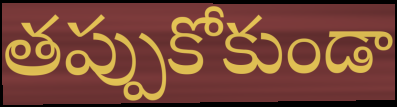
తప్పుకోకుండా